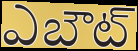
ఎబౌట్